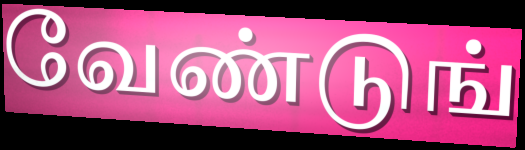
வேண்டுங்